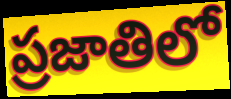
ప్రజాతిలో